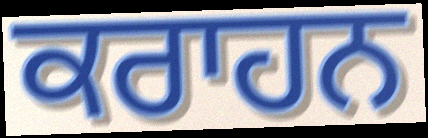
ਕਰਾਹਨ